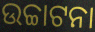
ଉଚ୍ଚାଟନା